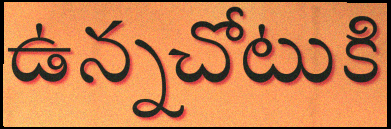
ఉన్నచోటుకి